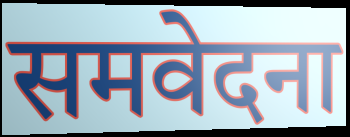
समवेदना